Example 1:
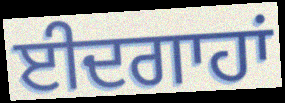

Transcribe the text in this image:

ਈਦਗਾਹਾਂ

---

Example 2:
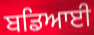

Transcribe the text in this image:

ਬਡਿਆਈ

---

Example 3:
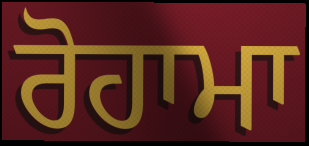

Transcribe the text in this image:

ਰੋਹਾਮਾ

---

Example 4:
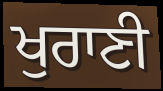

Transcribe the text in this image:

ਖੁਰਾਣੀ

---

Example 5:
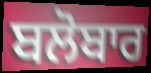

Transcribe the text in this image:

ਬਲੋਬਾਰ